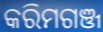
କରିମଗଞ୍ଜ